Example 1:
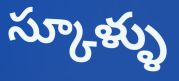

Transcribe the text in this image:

స్కూళ్ళు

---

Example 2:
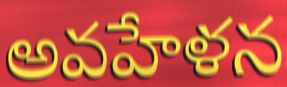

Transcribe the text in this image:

అవహేళన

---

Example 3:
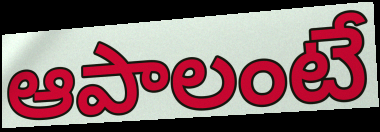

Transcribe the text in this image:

ఆపాలంటే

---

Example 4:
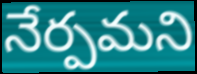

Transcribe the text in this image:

నేర్పమని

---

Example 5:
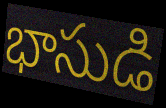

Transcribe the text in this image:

భాసుడి